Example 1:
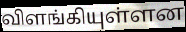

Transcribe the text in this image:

விளங்கியுள்ளன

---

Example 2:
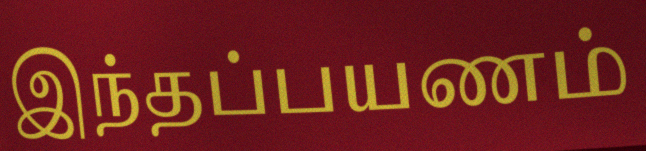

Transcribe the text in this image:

இந்தப்பயணம்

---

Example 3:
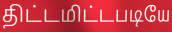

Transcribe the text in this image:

திட்டமிட்டபடியே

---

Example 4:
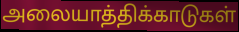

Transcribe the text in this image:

அலையாத்திக்காடுகள்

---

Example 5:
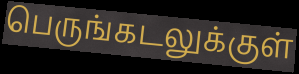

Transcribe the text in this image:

பெருங்கடலுக்குள்